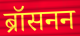
ब्रॉसनन